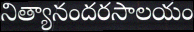
నిత్యానందరసాలయం